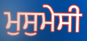
ਮੁਸੁਮੇਸੀ